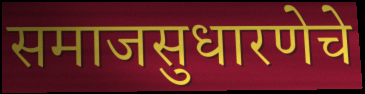
समाजसुधारणेचे